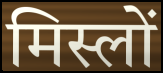
मिस्लों